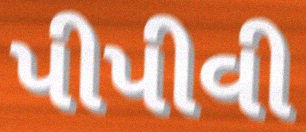
પીપીવી